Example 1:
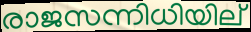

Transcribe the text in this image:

രാജസന്നിധിയില്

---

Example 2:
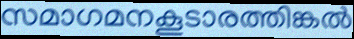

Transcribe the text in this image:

സമാഗമനകൂടാരത്തിങ്കൽ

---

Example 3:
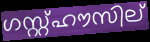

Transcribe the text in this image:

ഗസ്റ്റ്ഹൗസില്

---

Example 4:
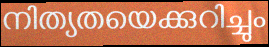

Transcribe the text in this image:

നിത്യതയെക്കുറിച്ചും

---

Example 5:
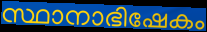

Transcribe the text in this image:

സ്ഥാനാഭിഷേകം